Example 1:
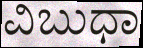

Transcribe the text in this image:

ವಿಬುಧಾ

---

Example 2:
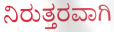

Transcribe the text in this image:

ನಿರುತ್ತರವಾಗಿ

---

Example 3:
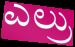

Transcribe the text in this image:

ಎಲ್ರು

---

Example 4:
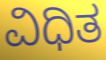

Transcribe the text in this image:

ವಿಧಿತ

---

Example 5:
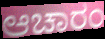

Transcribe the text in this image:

ಆಚಾರಂ